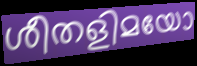
ശീതളിമയോ